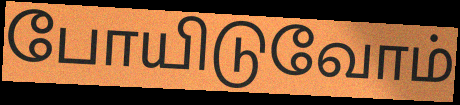
போயிடுவோம்